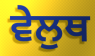
ਵੇਲੁਥ